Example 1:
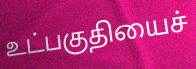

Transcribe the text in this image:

உட்பகுதியைச்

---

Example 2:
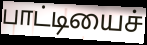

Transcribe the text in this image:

பாட்டியைச்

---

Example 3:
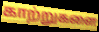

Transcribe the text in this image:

காற்றுகளை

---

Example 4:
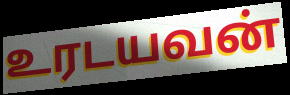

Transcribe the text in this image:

உரடயவன்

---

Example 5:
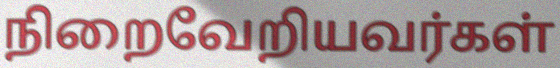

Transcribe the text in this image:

நிறைவேறியவர்கள்